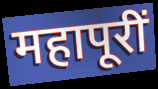
महापूरीं